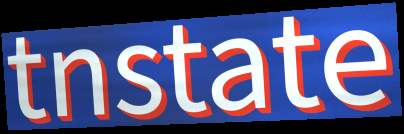
tnstate